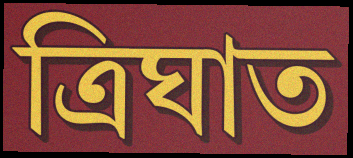
ত্ৰিঘাত